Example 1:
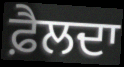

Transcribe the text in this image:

ਫ਼ੈਲਦਾ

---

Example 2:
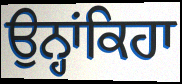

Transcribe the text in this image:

ਉਨ੍ਹਾਂਕਿਹਾ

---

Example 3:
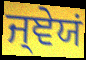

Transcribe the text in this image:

ਜ੍ਞੇਯਂ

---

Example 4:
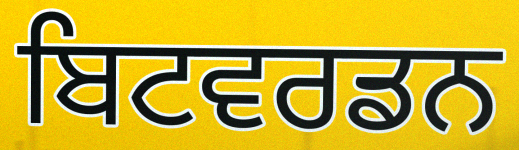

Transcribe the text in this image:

ਬਿਟਵਰਡਨ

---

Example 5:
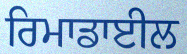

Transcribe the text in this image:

ਰਿਮਾਡਾਈਲ